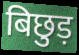
बिछुड़